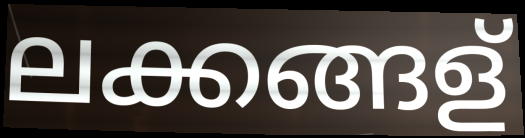
ലക്കങ്ങള്